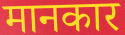
मानकार